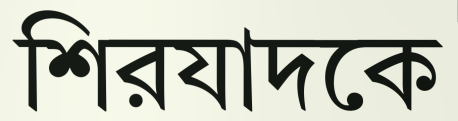
শিরযাদকে